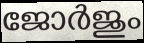
ജോർജും